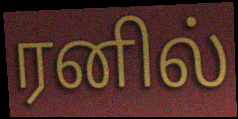
ரனில்